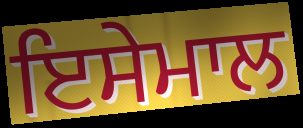
ਇਸੇਮਾਲ